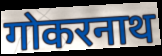
गोकरनाथ